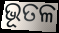
ଭୂତଳ